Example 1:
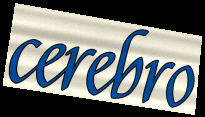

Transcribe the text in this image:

cerebro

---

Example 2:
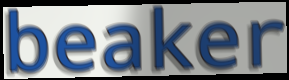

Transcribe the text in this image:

beaker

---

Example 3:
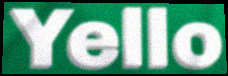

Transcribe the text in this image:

Yello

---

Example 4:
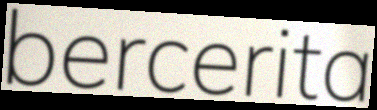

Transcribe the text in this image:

bercerita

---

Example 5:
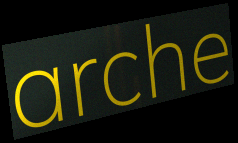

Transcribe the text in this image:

arche